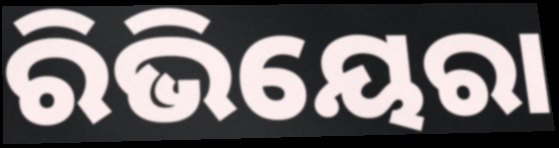
ରିଭିୟେରା